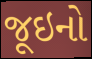
જૂઇનો